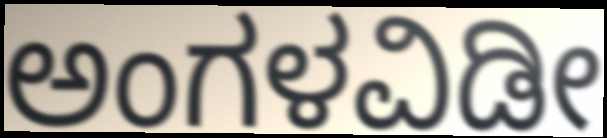
ಅಂಗಳವಿಡೀ